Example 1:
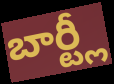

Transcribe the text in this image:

బార్ట్లీ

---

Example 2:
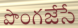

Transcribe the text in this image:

పొంగజేసే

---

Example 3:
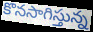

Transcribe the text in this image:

కొనసాగిస్తున్న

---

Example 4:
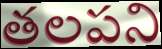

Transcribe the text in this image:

తలపని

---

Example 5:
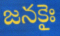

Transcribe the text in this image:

జనకైః